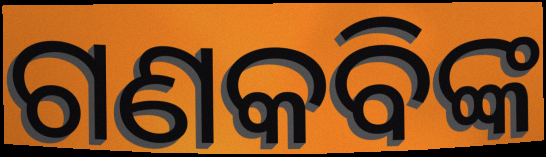
ଗଣକବିଙ୍କ